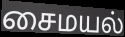
சைமயல்